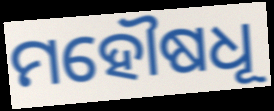
ମହୌଷଧୂ